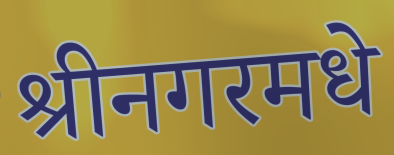
श्रीनगरमधे